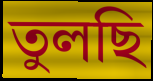
তুলছি